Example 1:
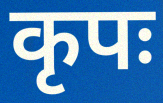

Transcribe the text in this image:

कृपः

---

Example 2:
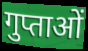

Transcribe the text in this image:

गुप्ताओं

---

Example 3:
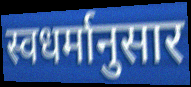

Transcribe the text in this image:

स्वधर्मानुसार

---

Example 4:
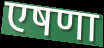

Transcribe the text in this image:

एषणा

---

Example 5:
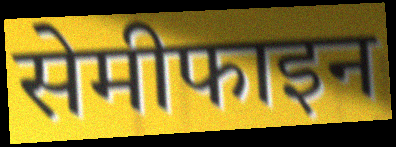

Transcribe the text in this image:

सेमीफाइन